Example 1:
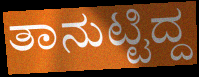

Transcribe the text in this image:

ತಾನುಟ್ಟಿದ್ದ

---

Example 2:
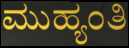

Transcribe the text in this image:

ಮುಹ್ಯಂತಿ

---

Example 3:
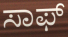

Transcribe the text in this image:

ಸಾಫ್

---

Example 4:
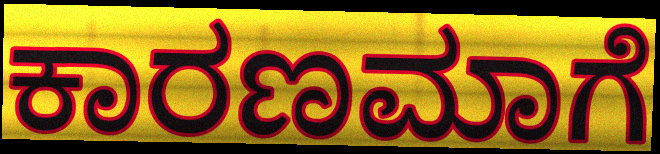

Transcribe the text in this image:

ಕಾರಣಮಾಗೆ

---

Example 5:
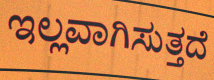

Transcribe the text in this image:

ಇಲ್ಲವಾಗಿಸುತ್ತದೆ